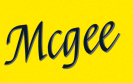
Mcgee